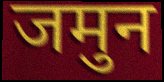
जमुन